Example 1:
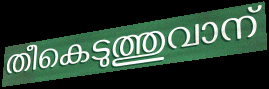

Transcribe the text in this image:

തീകെടുത്തുവാന്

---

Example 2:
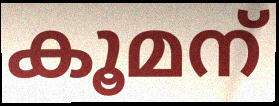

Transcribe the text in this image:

കൂമന്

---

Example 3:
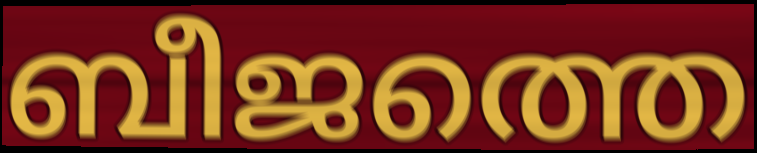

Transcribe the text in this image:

ബീജത്തെ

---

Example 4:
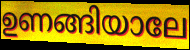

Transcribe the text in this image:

ഉണങ്ങിയാലേ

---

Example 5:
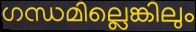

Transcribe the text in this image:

ഗന്ധമില്ലെങ്കിലും